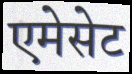
एमेसेट